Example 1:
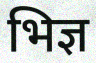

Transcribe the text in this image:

भिज्ञ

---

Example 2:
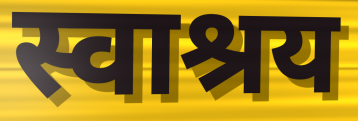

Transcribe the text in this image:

स्वाश्रय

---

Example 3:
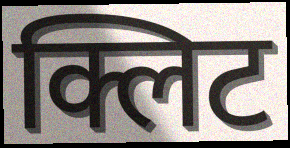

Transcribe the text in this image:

क्लिट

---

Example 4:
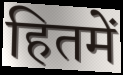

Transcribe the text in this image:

हितमें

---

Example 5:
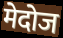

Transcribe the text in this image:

मेदोज